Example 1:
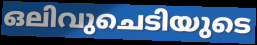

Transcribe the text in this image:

ഒലിവുചെടിയുടെ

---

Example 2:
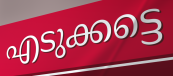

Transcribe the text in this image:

എടുക്കട്ടെ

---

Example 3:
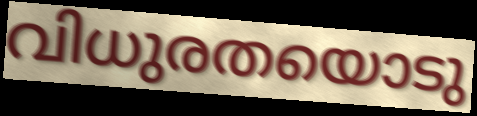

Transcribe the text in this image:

വിധുരതയൊടു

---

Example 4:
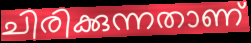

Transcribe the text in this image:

ചിരിക്കുന്നതാണ്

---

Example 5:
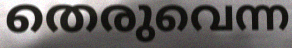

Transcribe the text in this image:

തെരുവെന്ന